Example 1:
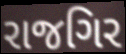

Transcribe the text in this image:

રાજગિર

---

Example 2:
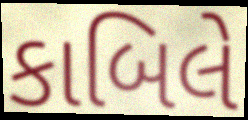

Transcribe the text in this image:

કાબિલે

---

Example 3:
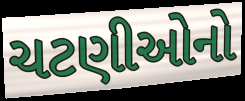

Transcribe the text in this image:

ચટણીઓનો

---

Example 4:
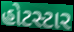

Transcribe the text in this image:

હોટસ્ટાર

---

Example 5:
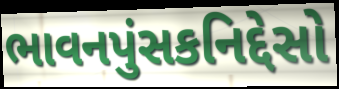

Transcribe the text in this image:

ભાવનપુંસકનિદ્દેસો